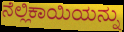
ನೆಲ್ಲಿಕಾಯಿಯನ್ನು